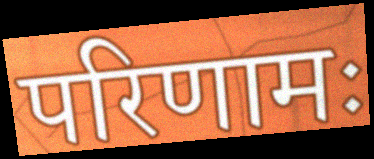
परिणामः